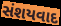
સંશયવાદ